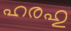
ഹരഹു